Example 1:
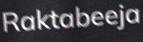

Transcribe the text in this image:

Raktabeeja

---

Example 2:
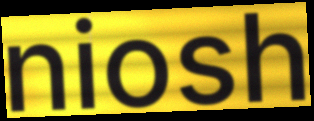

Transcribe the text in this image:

niosh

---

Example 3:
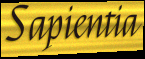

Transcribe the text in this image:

Sapientia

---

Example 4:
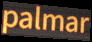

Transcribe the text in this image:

palmar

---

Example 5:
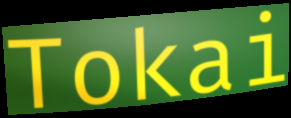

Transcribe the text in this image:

Tokai